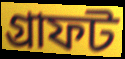
গ্রাফট